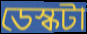
ডেস্কটা